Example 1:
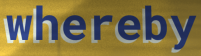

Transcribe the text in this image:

whereby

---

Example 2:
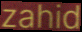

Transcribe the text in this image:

zahid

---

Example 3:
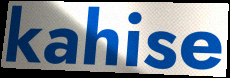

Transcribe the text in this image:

kahise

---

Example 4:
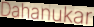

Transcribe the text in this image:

Dahanukar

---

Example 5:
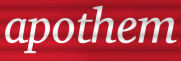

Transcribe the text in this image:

apothem